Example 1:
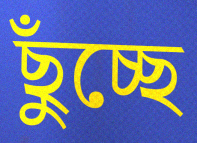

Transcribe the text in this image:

ছুঁচ্ছে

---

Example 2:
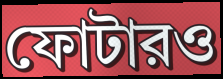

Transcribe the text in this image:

ফোটারও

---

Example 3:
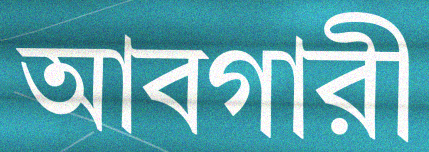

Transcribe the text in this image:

আবগারী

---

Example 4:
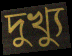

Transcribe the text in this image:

দুখ্যু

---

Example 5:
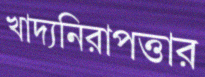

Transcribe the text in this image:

খাদ্যনিরাপত্তার